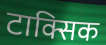
टाक्सिक